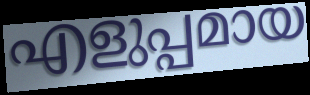
എളുപ്പമായ